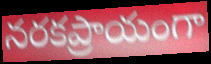
నరకప్రాయంగా